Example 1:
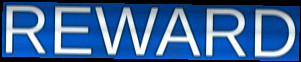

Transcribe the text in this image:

REWARD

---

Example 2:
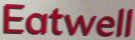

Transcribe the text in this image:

Eatwell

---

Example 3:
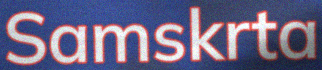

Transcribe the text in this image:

Samskrta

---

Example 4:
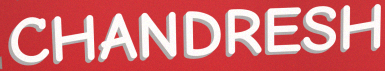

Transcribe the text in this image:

CHANDRESH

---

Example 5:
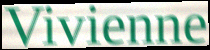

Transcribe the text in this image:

Vivienne